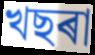
খছৰা